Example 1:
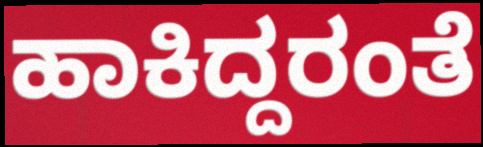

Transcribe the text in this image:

ಹಾಕಿದ್ದರಂತೆ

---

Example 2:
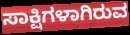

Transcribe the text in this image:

ಸಾಕ್ಷಿಗಳಾಗಿರುವ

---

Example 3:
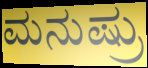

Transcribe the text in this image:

ಮನುಷ್ರು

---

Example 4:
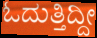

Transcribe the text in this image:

ಓದುತ್ತಿದ್ದೀ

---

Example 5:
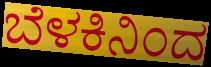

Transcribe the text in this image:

ಬೆಳಕಿನಿಂದ